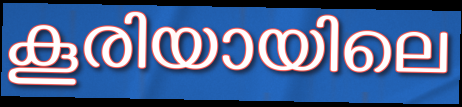
കൂരിയായിലെ